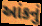
આંકનું